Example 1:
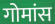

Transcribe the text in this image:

गोमांस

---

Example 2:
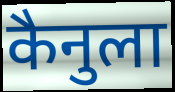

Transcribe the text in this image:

कैनुला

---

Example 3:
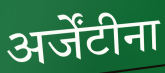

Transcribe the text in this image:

अर्जेंटीना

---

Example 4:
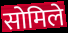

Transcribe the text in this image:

सोमिले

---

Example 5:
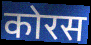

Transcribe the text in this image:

कोरस